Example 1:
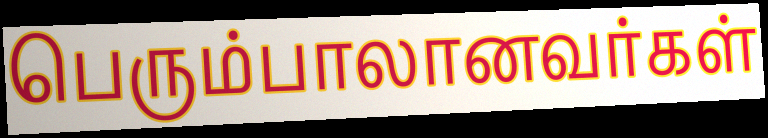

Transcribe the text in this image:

பெரும்பாலானவர்கள்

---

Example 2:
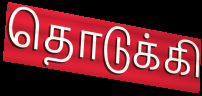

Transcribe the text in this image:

தொடுக்கி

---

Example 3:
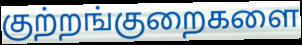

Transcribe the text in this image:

குற்றங்குறைகளை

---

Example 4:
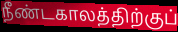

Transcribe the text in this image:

நீண்டகாலத்திற்குப்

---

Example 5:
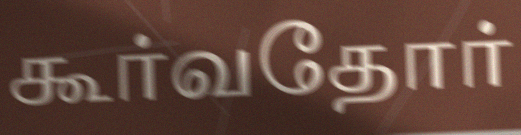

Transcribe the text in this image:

கூர்வதோர்